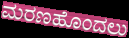
ಮರಣಹೊಂದಲು